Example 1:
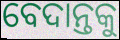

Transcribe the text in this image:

ବେଦାନ୍ତକୁ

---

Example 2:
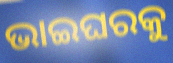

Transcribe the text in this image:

ଭାଇଘରକୁ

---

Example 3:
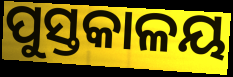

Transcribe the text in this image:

ପୁସ୍ତକାଳୟ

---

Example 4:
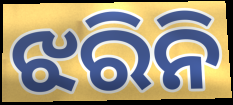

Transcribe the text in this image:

ଝରିନି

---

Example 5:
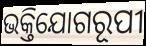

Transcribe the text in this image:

ଭକ୍ତିଯୋଗରୂପୀ